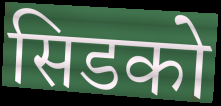
सिडको